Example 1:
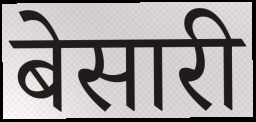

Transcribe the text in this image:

बेसारी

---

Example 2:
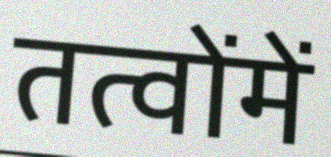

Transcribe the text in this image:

तत्वोंमें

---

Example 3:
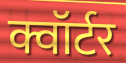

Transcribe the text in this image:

क्वॉर्टर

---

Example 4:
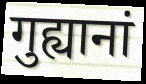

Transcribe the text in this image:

गुह्यानां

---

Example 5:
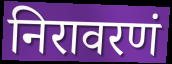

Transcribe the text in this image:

निरावरणं